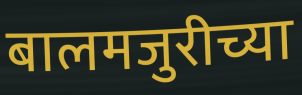
बालमजुरीच्या